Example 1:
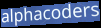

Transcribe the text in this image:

alphacoders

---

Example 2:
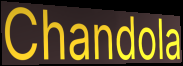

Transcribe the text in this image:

Chandola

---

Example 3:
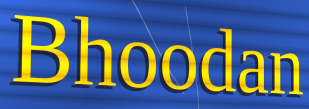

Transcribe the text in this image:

Bhoodan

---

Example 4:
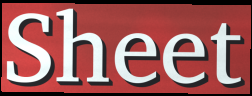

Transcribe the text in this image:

Sheet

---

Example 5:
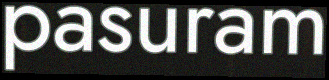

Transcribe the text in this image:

pasuram